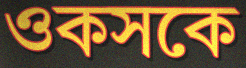
ওকসকে